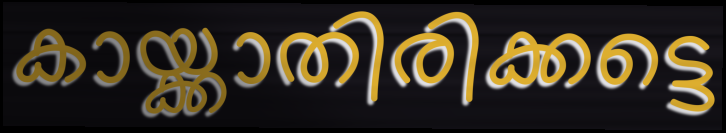
കായ്ക്കാതിരിക്കട്ടെ